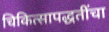
चिकित्सापद्धतींचा